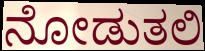
ನೋಡುತಲಿ